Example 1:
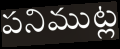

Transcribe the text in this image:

పనిముట్ల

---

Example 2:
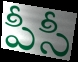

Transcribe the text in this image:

పీసీ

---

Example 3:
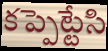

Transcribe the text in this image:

కప్పెట్టేసి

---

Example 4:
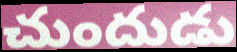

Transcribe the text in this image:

చుందుడు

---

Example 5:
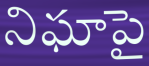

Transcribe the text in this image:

నిఘాపై